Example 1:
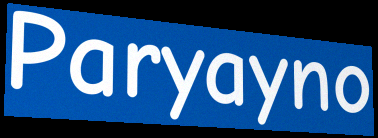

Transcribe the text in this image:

Paryayno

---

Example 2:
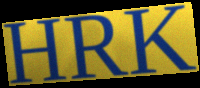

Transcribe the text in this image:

HRK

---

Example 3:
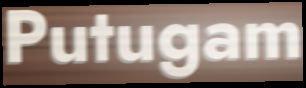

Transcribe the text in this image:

Putugam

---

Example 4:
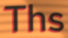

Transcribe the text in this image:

Ths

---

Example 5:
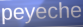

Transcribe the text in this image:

peyeche